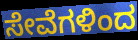
ಸೇವೆಗಳಿಂದ